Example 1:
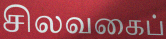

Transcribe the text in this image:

சிலவகைப்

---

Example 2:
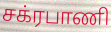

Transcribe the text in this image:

சக்ரபாணி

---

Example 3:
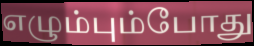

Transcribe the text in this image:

எழும்பும்போது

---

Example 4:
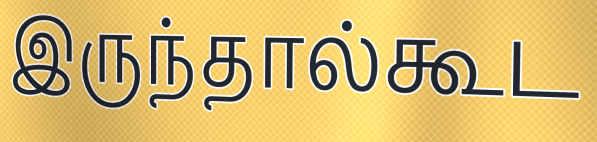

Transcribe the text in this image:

இருந்தால்கூட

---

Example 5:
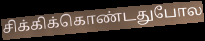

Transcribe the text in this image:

சிக்கிக்கொண்டதுபோல